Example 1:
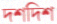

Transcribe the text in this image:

দশদিশ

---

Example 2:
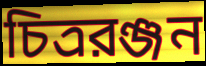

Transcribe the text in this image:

চিত্ররঞ্জন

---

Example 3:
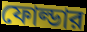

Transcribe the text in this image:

ফোল্ডার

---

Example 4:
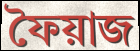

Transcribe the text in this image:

ফৈয়াজ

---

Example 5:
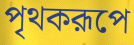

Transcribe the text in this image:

পৃথকরূপে